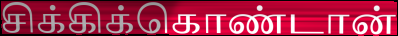
சிக்கிக்கொண்டான்